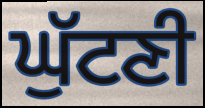
ਘੁੱਟਣੀ